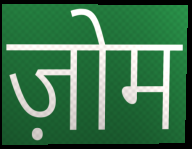
ज़ोम